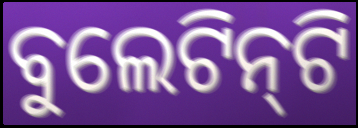
ବୁଲେଟିନ୍‍ଟି